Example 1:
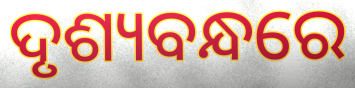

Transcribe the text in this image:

ଦୃଶ୍ୟବନ୍ଧରେ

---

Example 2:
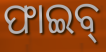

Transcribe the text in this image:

ଫାଇବ୍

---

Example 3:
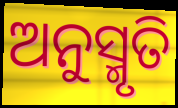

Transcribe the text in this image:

ଅନୁସ୍ମୃତି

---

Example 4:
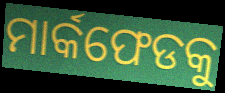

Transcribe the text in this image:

ମାର୍କଫେଡକୁ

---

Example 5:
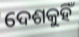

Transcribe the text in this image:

ଦେଶକୁହିଁ